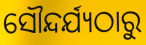
ସୌନ୍ଦର୍ଯ୍ୟଠାରୁ